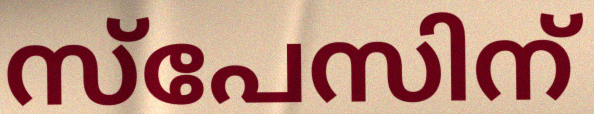
സ്പേസിന്